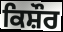
ਕਿਸ਼ੌਰ